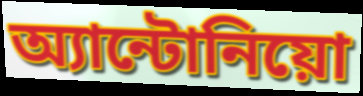
অ্যান্টোনিয়ো